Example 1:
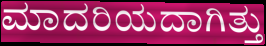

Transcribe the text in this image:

ಮಾದರಿಯದಾಗಿತ್ತು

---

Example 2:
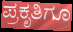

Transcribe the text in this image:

ಪ್ರಕೃತಿಗೂ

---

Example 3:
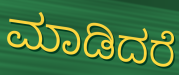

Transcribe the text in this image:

ಮಾಡಿದರೆ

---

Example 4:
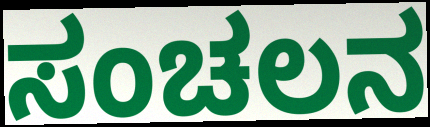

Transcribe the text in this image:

ಸಂಚಲನ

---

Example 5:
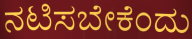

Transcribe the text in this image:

ನಟಿಸಬೇಕೆಂದು